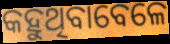
କହୁଥିବାବେଳେ